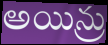
అయిన్రు